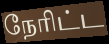
நேரிட்ட